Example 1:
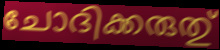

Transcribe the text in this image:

ചോദിക്കരുതു്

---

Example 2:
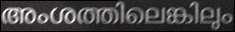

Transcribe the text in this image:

അംശത്തിലെങ്കിലും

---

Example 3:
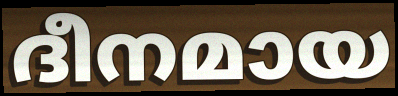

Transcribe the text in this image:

ദീനമായ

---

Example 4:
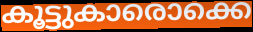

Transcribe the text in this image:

കൂട്ടുകാരൊക്കെ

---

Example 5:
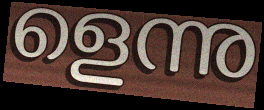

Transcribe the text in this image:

ളെന്നു